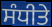
ਸੰਧੀਤੇ